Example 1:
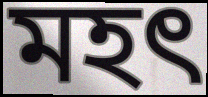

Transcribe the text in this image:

মহত্‍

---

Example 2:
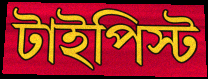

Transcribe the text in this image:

টাইপিস্ট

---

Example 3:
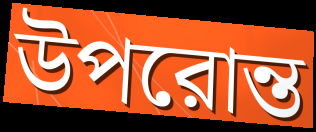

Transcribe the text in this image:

উপরোন্ত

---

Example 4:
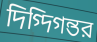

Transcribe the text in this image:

দিগ্দিগন্তর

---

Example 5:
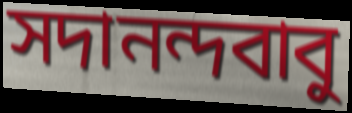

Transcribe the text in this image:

সদানন্দবাবু